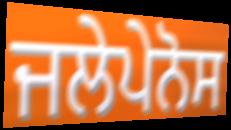
ਜਲੇਪੇਨੋਸ